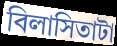
বিলাসিতাটা